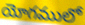
యోగములో